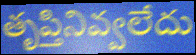
తృప్తినివ్వలేదు